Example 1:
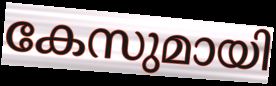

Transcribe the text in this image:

കേസുമായി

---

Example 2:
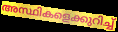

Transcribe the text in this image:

അസ്ഥികളെക്കുറിച്ച്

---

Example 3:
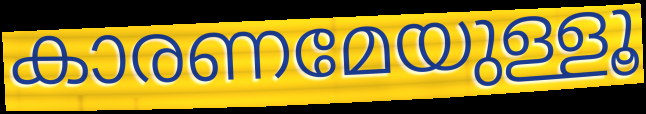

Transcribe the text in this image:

കാരണമേയുള്ളൂ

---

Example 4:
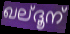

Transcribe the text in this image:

ഖല്ദൂന്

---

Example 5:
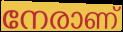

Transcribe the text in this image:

നേരാണ്